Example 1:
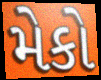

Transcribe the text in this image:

મેકો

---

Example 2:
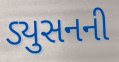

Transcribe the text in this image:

ડ્યુસનની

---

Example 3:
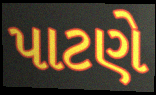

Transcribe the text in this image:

પાટણે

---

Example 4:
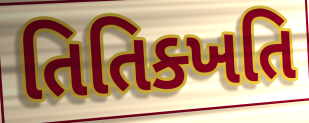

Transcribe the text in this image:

તિતિક્ખતિ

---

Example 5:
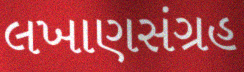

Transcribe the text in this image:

લખાણસંગ્રહ